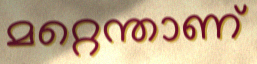
മറ്റെന്താണ്